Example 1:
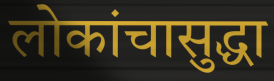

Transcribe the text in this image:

लोकांचासुद्धा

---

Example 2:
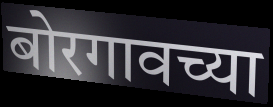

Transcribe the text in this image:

बोरगावच्या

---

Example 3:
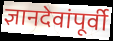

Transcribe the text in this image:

ज्ञानदेवांपूर्वी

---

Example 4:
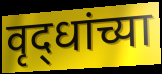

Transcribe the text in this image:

वृद्धांच्या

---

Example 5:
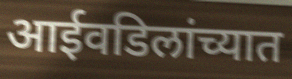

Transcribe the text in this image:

आईवडिलांच्यात